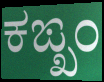
ಕಙ್ಖಂ